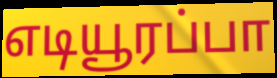
எடியூரப்பா